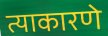
त्याकारणे